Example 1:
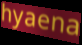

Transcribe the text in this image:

hyaena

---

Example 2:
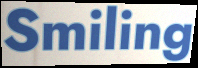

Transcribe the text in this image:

Smiling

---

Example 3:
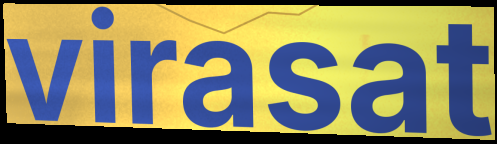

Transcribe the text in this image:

virasat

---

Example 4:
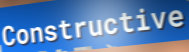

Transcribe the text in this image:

Constructive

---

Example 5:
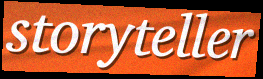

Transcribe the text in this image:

storyteller